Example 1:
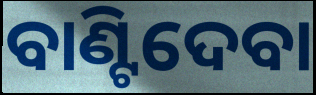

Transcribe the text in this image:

ବାଣ୍ଟିଦେବା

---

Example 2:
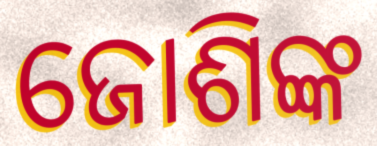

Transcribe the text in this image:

ଜୋଶିଙ୍କ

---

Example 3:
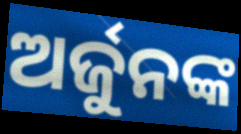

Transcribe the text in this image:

ଅର୍ଜୁନଙ୍କ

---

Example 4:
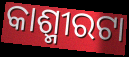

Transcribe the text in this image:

କାଶ୍ମୀରଟା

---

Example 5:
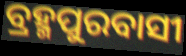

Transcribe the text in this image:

ବ୍ରହ୍ମପୁରବାସୀ